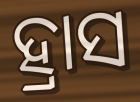
ହ୍ରାସ